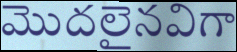
మొదలైనవిగా